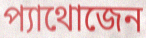
প্যাথোজেন